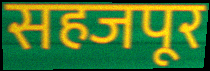
सहजपूर